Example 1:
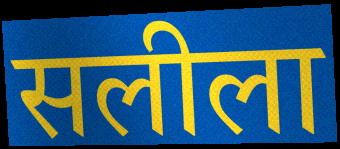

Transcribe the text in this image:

सलीला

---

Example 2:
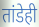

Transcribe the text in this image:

तांडेही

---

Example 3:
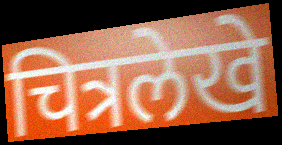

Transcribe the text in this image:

चित्रलेखे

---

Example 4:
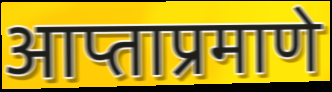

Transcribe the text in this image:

आप्ताप्रमाणे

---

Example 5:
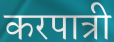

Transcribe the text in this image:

करपात्री